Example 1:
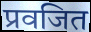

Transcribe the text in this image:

प्रवजित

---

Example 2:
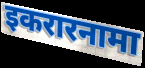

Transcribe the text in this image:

इकरारनामा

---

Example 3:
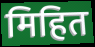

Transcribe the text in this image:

मिहित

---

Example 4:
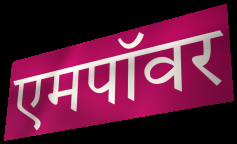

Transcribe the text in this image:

एमपॉवर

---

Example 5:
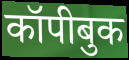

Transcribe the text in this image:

कॉपीबुक